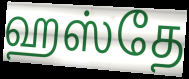
ஹஸ்தே